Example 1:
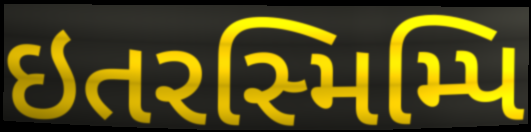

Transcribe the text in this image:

ઇતરસ્મિમ્પિ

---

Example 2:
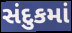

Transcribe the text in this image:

સંદુકમાં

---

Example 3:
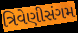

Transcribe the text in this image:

ત્રિવેણીસંગમ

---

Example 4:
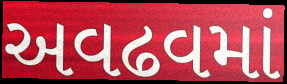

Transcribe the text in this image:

અવઢવમાં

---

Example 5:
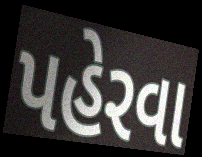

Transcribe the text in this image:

પહેરવા